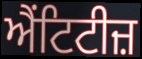
ਐਂਟਿਟੀਜ਼